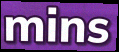
mins